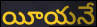
యీయనే